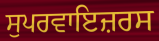
ਸੁਪਰਵਾਇਜ਼ਰਸ